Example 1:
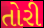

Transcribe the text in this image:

તોરી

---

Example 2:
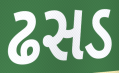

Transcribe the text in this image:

ઢસડ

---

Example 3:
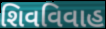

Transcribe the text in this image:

શિવવિવાહ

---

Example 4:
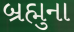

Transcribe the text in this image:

બ્રહ્મુના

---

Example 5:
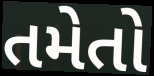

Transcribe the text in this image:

તમેતો